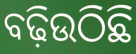
ବଢ଼ିଉଠିଛି